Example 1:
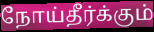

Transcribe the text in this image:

நோய்தீர்க்கும்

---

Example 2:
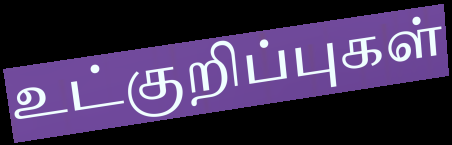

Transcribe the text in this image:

உட்குறிப்புகள்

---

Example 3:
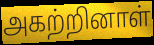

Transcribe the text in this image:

அகற்றினாள்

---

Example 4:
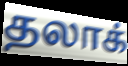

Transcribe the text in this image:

தலாக்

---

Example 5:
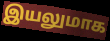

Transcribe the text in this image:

இயலுமாக